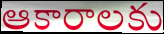
ఆకారాలకు